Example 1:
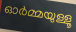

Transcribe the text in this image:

ഓർമ്മയുള്ളൂ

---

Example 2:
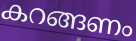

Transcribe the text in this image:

കറങ്ങണം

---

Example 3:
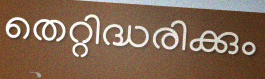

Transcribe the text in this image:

തെറ്റിദ്ധരിക്കും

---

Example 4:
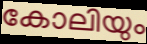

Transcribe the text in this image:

കോലിയും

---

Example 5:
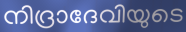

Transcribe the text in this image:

നിദ്രാദേവിയുടെ